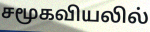
சமூகவியலில்